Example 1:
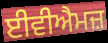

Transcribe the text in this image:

ਈਵੀਐਮਜ਼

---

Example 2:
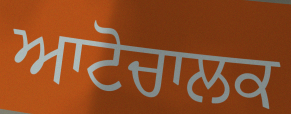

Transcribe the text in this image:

ਆਟੋਚਾਲਕ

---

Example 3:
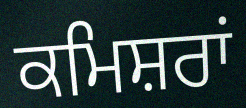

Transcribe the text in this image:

ਕਮਿਸ਼ਰਾਂ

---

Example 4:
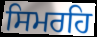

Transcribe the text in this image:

ਸਿਮਰਹਿ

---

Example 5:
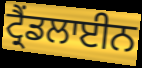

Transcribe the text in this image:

ਟ੍ਰੈਂਡਲਾਈਨ